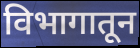
विभागातून